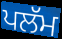
ਪਲੱਮ